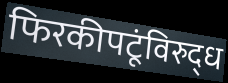
फिरकीपटूंविरुद्ध